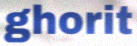
ghorit